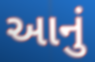
આનું